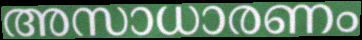
അസാധാരണം